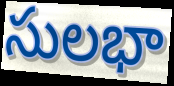
సులభా